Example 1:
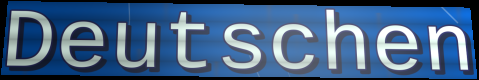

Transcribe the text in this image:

Deutschen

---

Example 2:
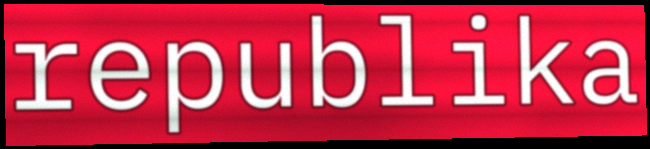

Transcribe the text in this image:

republika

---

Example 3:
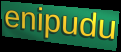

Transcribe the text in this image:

enipudu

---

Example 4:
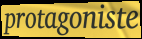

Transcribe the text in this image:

protagoniste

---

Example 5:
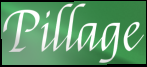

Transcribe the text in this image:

Pillage